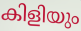
കിളിയും